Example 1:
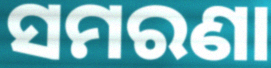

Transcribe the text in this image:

ସମରଣା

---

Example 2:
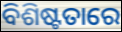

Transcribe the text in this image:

ବିଶିଷ୍ଟତାରେ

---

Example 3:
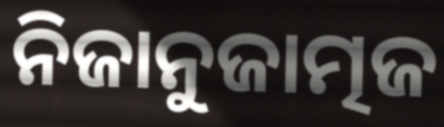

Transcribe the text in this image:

ନିଜାନୁଜାତ୍ମଜ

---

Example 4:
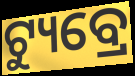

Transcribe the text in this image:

ଟ୍ୟୁବ୍ରେ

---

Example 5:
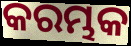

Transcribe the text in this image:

କରମ୍ଭକ